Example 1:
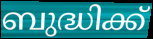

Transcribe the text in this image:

ബുദ്ധിക്ക്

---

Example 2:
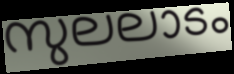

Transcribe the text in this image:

സുലലാടം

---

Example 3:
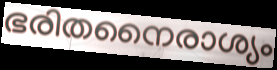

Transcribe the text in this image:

ഭരിതനൈരാശ്യം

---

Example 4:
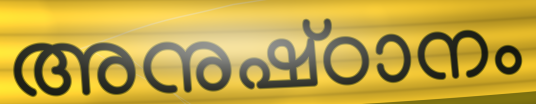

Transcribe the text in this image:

അനുഷ്‌ഠാനം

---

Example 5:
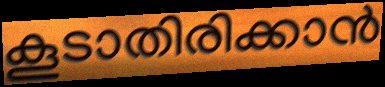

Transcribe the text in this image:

കൂടാതിരിക്കാൻ